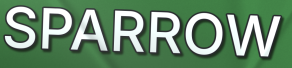
SPARROW